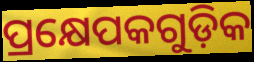
ପ୍ରକ୍ଷେପକଗୁଡ଼ିକ